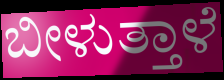
ಬೀಳುತ್ತಾಳೆ